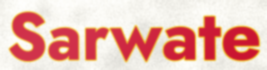
Sarwate